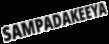
SAMPADAKEEYA